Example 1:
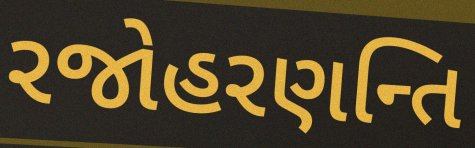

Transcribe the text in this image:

રજોહરણન્તિ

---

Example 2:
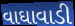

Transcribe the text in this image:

વાઘાવાડી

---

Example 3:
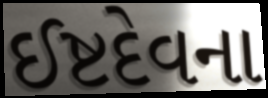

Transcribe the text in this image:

ઈષ્ટદેવના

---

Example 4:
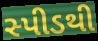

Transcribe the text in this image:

સ્પીડથી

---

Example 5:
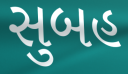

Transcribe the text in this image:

સુબહ